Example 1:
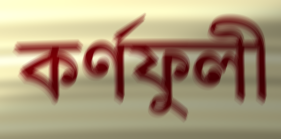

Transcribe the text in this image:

কর্ণফুলী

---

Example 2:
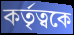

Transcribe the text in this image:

কর্তৃত্বকে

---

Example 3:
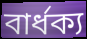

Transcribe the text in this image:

বার্ধক্য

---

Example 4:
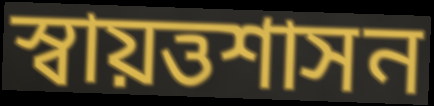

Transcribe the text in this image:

স্বায়ত্তশাসন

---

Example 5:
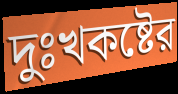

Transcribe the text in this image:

দুঃখকষ্টের